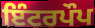
ਇੰਟਰਪੌਪ